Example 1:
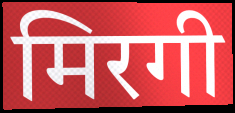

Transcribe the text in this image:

मिरगी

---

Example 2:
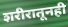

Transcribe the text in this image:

शरीरातूनही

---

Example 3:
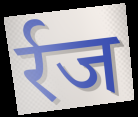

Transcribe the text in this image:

र्रज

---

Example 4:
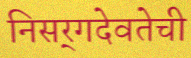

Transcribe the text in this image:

निसर्गदेवतेची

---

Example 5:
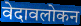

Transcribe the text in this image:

वेदावलोकन